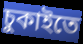
চুকাইতে